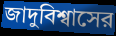
জাদুবিশ্বাসের